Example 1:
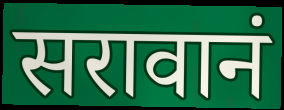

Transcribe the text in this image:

सरावानं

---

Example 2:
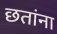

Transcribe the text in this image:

छतांना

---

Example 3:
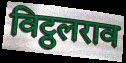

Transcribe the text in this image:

विट्ठलराव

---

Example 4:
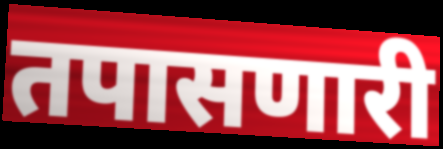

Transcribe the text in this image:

तपासणारी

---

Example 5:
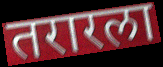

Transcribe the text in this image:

तरारला